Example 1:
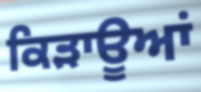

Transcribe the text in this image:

ਕਿੜਾਊਆਂ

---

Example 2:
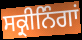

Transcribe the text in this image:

ਸਕ੍ਰੀਨਿੰਗਾਂ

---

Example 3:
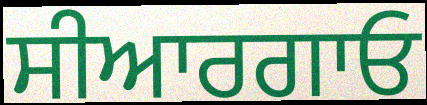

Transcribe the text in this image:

ਸੀਆਰਗਾਓ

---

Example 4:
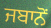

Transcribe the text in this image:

ਜਬਾਨੋਂ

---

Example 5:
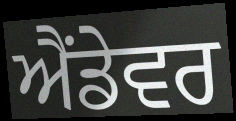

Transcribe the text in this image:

ਐਂਡੇਵਰ